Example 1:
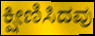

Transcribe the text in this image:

ಕ್ಷೀಣಿಸಿದವು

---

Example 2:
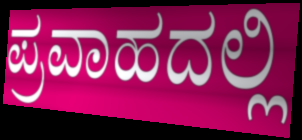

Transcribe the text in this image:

ಪ್ರವಾಹದಲ್ಲಿ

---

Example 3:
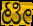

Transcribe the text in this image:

ಟೀ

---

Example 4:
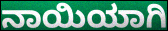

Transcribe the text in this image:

ನಾಯಿಯಾಗಿ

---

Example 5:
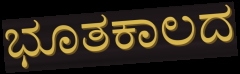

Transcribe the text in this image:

ಭೂತಕಾಲದ